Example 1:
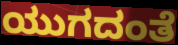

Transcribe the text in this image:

ಯುಗದಂತೆ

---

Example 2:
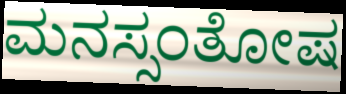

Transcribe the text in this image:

ಮನಸ್ಸಂತೋಷ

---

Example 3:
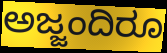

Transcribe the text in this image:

ಅಜ್ಜಂದಿರೂ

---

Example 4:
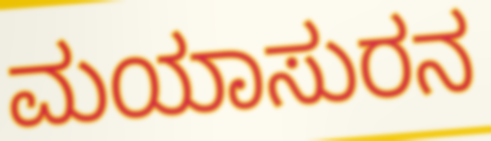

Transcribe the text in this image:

ಮಯಾಸುರನ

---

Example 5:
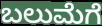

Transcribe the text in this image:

ಬಲುಮೆಗೆ